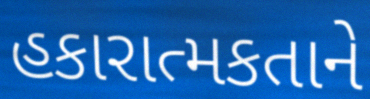
હકારાત્મકતાને